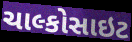
ચાલ્કોસાઇટ